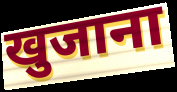
खुजाना